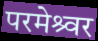
परमेश्र्वर